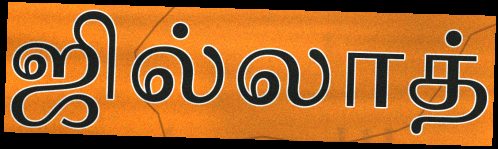
ஜில்லாத்